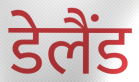
डेलैंड